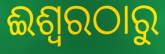
ଈଶ୍ୱରଠାରୁ